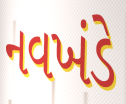
નવખંડે